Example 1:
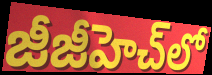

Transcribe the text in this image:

జీజీహెచ్‌లో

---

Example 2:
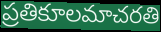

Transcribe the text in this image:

ప్రతికూలమాచరతి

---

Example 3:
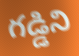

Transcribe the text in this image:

గడ్డిని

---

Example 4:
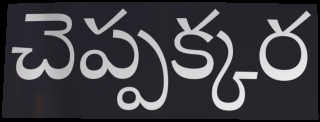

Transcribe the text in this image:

చెప్పక్కర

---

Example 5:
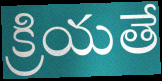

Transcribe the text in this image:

క్రియతే